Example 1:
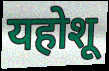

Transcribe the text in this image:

यहोशू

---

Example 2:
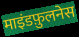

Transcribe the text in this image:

माइंडफ़ुलनेस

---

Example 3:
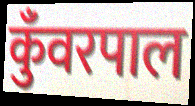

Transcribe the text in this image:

कुँवरपाल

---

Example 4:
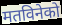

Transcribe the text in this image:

मतविनेको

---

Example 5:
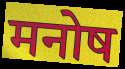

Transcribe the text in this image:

मनोष